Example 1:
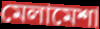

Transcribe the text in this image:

মেলামেশা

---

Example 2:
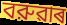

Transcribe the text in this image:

বৰুৱাৰ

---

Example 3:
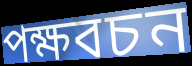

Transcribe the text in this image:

পক্ষবচন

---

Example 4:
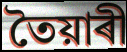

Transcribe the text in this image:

তৈয়াৰী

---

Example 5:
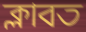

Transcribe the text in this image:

ক্লাবত